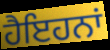
ਹੈਇਹਨਾਂ